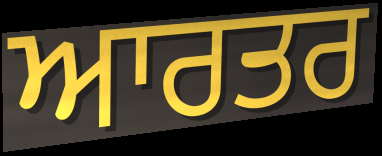
ਆਰਤਰ